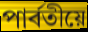
পাৰ্বতীয়ে